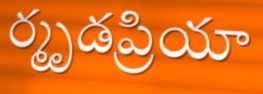
ర్మృడప్రియా